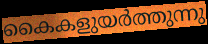
കൈകളുയർത്തുന്നു